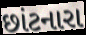
છાંટનારા